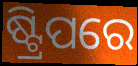
ଷ୍ଟ୍ରିପରେ